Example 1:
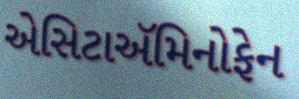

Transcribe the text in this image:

એસિટાઍમિનોફેન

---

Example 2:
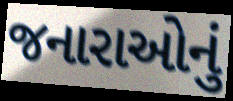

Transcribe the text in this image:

જનારાઓનું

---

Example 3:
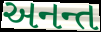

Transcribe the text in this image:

અનન્ત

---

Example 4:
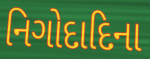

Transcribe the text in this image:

નિગોદાદિના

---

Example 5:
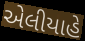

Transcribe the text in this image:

એલીયાહે